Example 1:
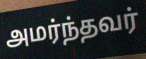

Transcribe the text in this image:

அமர்ந்தவர்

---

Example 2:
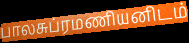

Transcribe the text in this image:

பாலசுப்ரமணியனிடம்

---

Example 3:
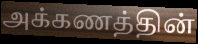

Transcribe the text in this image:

அக்கணத்தின்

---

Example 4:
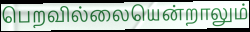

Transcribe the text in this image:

பெறவில்லையென்றாலும்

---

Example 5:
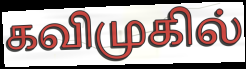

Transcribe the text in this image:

கவிமுகில்